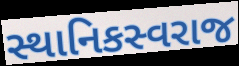
સ્થાનિકસ્વરાજ